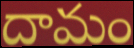
దామం